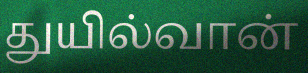
துயில்வான்